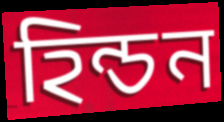
হিন্ডন